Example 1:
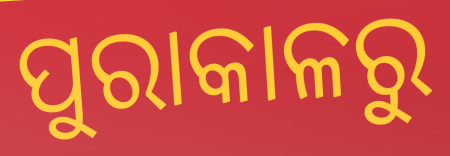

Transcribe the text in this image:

ପୁରାକାଳରୁ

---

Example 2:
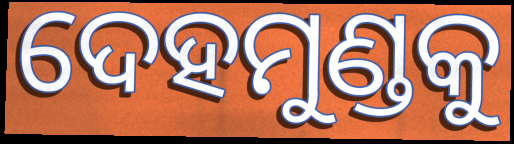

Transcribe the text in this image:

ଦେହମୁଣ୍ଡକୁ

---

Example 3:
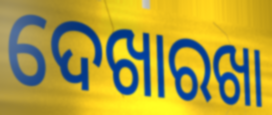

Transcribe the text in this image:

ଦେଖାରଖା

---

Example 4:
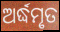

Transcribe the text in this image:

ଅର୍ଦ୍ଧମୃତ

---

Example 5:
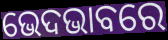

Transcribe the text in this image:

ଭେଦଭାବରେ